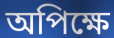
অপিক্ষে